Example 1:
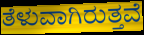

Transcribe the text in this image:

ತೆಳುವಾಗಿರುತ್ತವೆ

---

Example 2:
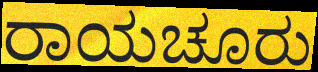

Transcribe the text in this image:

ರಾಯಚೂರು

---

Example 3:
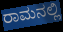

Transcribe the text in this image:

ರಾಮನಲ್ಲಿ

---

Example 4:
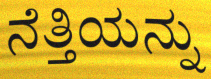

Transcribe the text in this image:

ನೆತ್ತಿಯನ್ನು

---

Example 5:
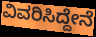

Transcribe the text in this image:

ವಿವರಿಸಿದ್ದೇನೆ